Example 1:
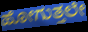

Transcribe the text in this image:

ಹೋಗುತ್ತಲೇ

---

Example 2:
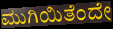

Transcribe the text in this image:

ಮುಗಿಯಿತೆಂದೇ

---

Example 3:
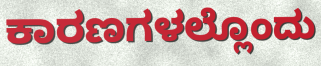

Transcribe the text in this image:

ಕಾರಣಗಳಲ್ಲೊಂದು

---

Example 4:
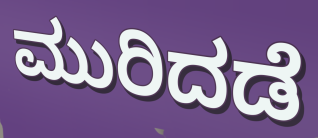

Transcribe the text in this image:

ಮುರಿದಡೆ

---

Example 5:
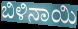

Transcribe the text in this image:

ಬಿಳಿನಾಯಿ